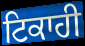
ਟਿਕਾਹੀ